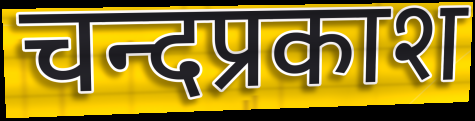
चन्दप्रकाश